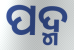
ପଦ୍ମ